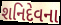
શનિદેવના